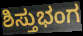
ಶಿಸ್ತುಭಂಗ